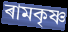
ৰামকৃষ্ণ